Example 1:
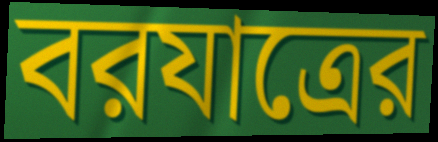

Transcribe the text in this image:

বরযাত্রের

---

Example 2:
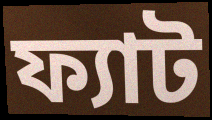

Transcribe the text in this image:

ফ্যাট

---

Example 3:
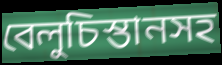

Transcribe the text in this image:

বেলুচিস্তানসহ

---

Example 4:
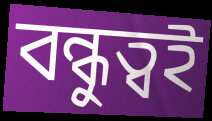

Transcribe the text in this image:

বন্ধুত্বই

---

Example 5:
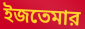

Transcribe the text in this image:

ইজতেমার